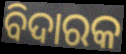
ବିଦାରକ